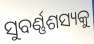
ସୁବର୍ଣ୍ଣଶସ୍ୟକୁ